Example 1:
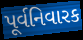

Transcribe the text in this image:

પૂર્વનિવારક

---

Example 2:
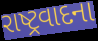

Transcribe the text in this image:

રાષ્ટ્રવાદના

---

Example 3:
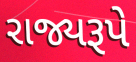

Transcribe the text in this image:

રાજ્યરૂપે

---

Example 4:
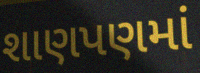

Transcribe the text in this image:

શાણપણમાં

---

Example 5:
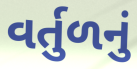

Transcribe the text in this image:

વર્તુળનું